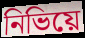
নিভিয়ে